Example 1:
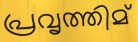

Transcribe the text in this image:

പ്രവൃത്തിമ്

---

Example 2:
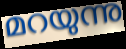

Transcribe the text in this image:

മറയുന്നു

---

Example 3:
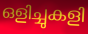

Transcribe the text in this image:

ഒളിച്ചുകളി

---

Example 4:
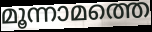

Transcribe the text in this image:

മൂന്നാമത്തെ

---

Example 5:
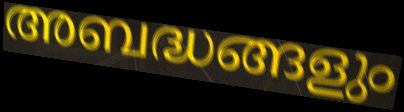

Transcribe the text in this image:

അബദ്ധങ്ങളും